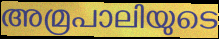
അമ്രപാലിയുടെ